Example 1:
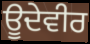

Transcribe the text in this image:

ਊਦੇਵੀਰ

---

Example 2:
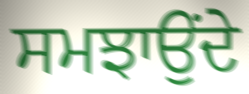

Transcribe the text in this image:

ਸਮਝਾਉੰਦੇ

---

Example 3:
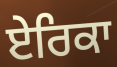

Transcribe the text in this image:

ਏਰਿਕਾ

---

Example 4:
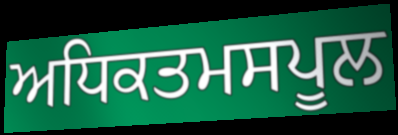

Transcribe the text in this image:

ਅਧਿਕਤਮਸਪੂਲ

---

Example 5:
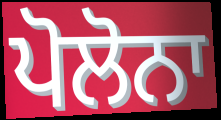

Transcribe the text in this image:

ਪੋਲੋਨਾ